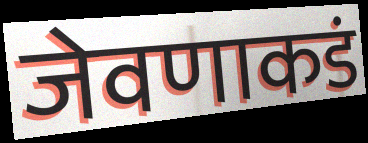
जेवणाकडं